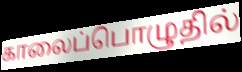
காலைப்பொழுதில்